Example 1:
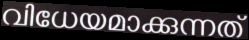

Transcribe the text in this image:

വിധേയമാക്കുന്നത്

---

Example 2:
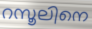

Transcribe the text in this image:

റസൂലിനെ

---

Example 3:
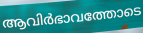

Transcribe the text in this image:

ആവിർഭാവത്തോടെ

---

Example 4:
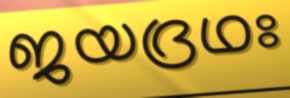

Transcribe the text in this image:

ജയദ്രഥഃ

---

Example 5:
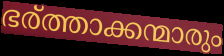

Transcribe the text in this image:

ഭര്ത്താക്കന്മാരും